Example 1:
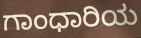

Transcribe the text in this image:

ಗಾಂಧಾರಿಯ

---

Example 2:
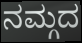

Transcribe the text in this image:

ನಮ್ಗದ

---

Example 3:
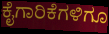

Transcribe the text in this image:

ಕೈಗಾರಿಕೆಗಳಿಗೂ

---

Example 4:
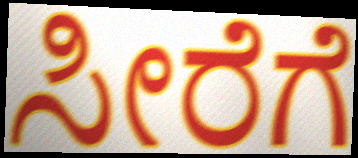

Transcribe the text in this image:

ಸೀರೆಗೆ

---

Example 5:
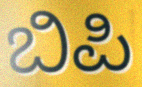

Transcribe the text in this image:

ಬಿಪಿ